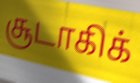
சூடாகிக்